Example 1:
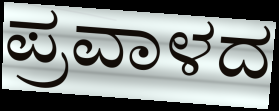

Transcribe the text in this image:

ಪ್ರವಾಳದ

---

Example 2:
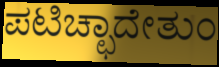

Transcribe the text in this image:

ಪಟಿಚ್ಛಾದೇತುಂ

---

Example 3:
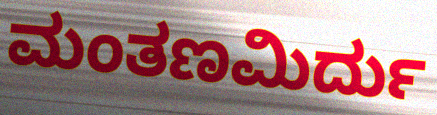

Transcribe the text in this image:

ಮಂತಣಮಿರ್ದು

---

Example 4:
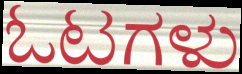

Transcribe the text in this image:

ಓಟಗಳು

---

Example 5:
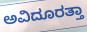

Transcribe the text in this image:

ಅವಿದೂರತ್ತಾ